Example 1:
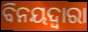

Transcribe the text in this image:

ବିନୟଦ୍ବାରା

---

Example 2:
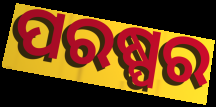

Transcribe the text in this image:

ପରଷ୍ପର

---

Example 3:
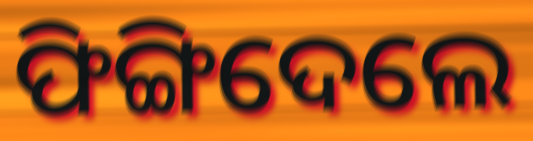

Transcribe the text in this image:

ଫିଙ୍ଗିଦେଲେ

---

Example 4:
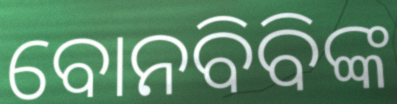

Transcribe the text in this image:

ବୋନବିବିଙ୍କ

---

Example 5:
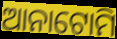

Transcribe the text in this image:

ଆନାଟୋମି